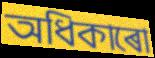
অধিকাৰো